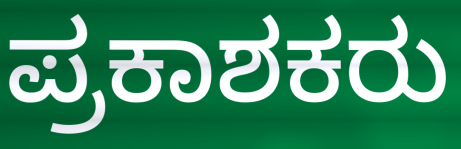
ಪ್ರಕಾಶಕರು